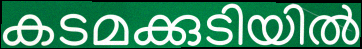
കടമക്കുടിയിൽ